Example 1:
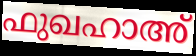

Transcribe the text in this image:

ഫുഖഹാഅ്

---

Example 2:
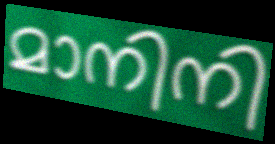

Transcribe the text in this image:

മാനിനി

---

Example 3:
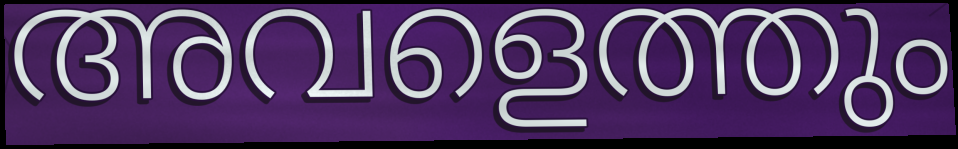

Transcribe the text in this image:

അവളെത്തും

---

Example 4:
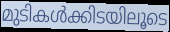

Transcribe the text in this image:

മുടികൾക്കിടയിലൂടെ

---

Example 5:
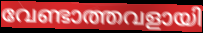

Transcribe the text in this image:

വേണ്ടാത്തവളായി